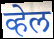
व्हेल